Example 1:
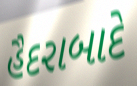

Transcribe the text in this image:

હૈદરાબાદે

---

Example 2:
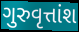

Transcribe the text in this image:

ગુરુવૃત્તાંશ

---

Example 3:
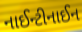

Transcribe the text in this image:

નાઈન્ટીનાઈન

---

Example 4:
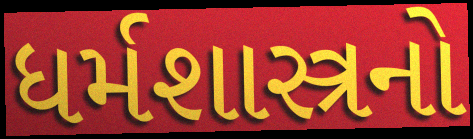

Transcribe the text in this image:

ધર્મશાસ્ત્રનો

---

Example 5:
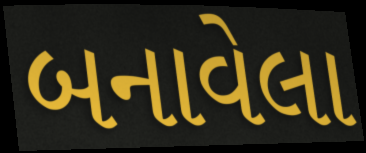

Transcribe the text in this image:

બનાવેલા